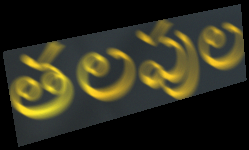
తలపుల